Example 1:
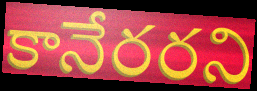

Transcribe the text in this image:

కానేరరని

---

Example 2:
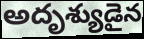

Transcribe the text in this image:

అదృశ్యుడైన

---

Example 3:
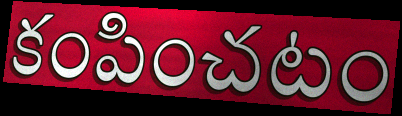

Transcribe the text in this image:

కంపించటం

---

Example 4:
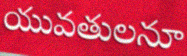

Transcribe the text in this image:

యువతులనూ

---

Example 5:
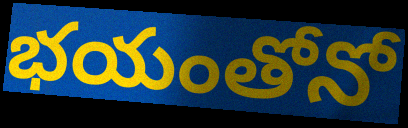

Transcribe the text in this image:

భయంతోనో